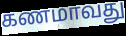
கணமாவது